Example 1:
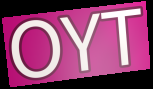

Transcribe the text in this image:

OYT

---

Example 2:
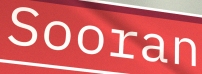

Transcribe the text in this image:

Sooran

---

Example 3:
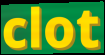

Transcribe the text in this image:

clot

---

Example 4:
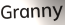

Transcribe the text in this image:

Granny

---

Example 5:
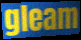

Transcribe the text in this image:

gleam